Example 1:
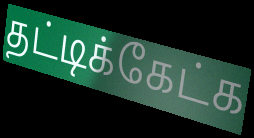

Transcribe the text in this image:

தட்டிக்கேட்க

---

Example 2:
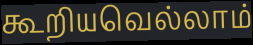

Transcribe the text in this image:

கூறியவெல்லாம்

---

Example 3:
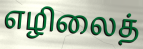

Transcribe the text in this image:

எழிலைத்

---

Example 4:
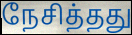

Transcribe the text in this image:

நேசித்தது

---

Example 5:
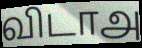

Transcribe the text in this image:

விடாஅ